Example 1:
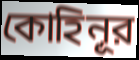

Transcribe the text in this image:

কোহিনূর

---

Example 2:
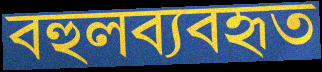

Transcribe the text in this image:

বহুলব্যবহৃত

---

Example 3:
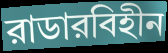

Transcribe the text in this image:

রাডারবিহীন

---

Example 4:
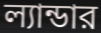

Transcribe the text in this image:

ল্যান্ডার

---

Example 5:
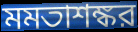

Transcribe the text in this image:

মমতাশঙ্কর